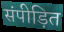
संपीड़ित